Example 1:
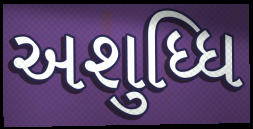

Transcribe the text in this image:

અશુધ્ધિ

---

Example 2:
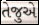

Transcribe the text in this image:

તેજુએ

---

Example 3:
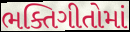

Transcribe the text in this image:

ભક્તિગીતોમાં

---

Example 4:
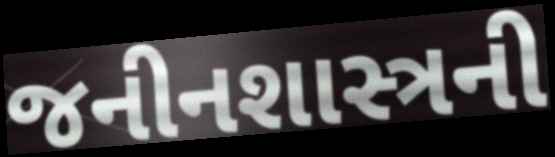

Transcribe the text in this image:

જનીનશાસ્ત્રની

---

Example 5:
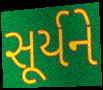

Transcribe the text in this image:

સૂર્યને